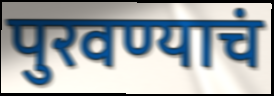
पुरवण्याचं